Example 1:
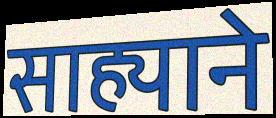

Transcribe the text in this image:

साह्याने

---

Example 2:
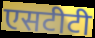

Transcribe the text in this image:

एसटीटी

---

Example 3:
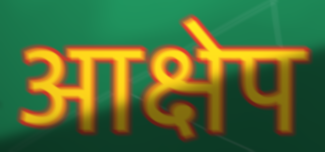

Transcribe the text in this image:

आक्षेप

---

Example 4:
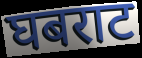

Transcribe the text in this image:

घबराट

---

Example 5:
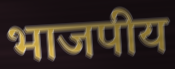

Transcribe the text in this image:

भाजपीय